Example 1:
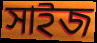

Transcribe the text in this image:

সাইজ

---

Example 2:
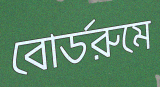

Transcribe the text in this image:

বোর্ডরুমে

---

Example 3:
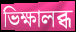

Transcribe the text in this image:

ভিক্ষালব্ধ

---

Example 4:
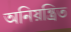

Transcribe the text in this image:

অনিয়ন্ত্রিত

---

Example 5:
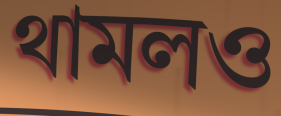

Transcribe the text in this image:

থামলও